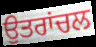
ਉਤਰਾਂਚਲ